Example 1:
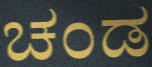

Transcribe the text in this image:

ಚಂಡ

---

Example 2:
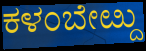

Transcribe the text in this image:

ಕಳಂಬೇೞ್ದು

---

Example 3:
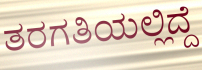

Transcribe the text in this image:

ತರಗತಿಯಲ್ಲಿದ್ದೆ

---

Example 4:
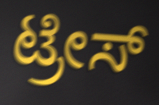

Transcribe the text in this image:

ಟ್ರೇಸ್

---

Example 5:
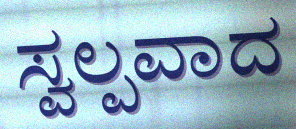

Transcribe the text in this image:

ಸ್ವಲ್ಪವಾದ